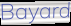
Bayard